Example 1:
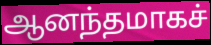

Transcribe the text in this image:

ஆனந்தமாகச்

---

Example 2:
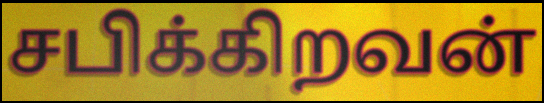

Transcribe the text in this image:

சபிக்கிறவன்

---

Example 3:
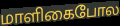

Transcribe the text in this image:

மாளிகைபோல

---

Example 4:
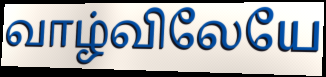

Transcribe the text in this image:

வாழ்விலேயே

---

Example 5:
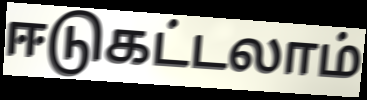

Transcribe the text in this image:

ஈடுகட்டலாம்